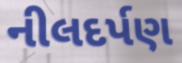
નીલદર્પણ